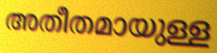
അതീതമായുള്ള